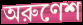
অরুণেশ